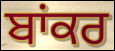
ਬਾਂਕਰ